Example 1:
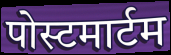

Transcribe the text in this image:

पोस्‍टमार्टम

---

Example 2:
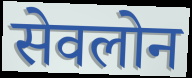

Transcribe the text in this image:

सेवलोन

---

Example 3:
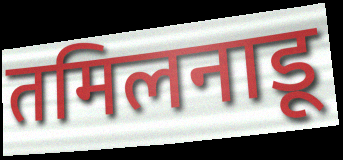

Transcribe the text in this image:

तमिलनाडू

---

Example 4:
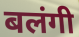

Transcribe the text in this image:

बलंगी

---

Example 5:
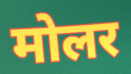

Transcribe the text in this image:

मोलर